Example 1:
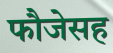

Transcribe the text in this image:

फौजेसह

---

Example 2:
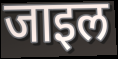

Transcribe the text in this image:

जाइल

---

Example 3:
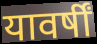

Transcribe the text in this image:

यावर्षीं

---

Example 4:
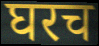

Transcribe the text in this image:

घरच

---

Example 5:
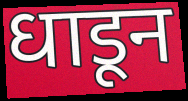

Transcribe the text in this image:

धाडून